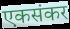
एकसंकर